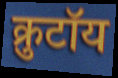
क्रुटॉय